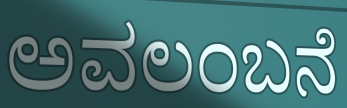
ಅವಲಂಬನೆ